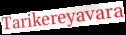
Tarikereyavara